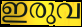
ഇരുവ